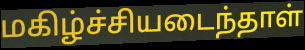
மகிழ்ச்சியடைந்தாள்